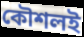
কৌশলই